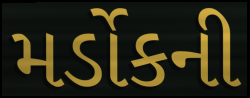
મર્ડોકની